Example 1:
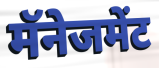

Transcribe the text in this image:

मॅनेजमेंट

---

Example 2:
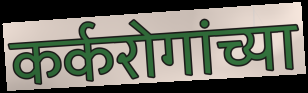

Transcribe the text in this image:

कर्करोगांच्या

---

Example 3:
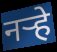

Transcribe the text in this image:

नऱ्हे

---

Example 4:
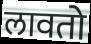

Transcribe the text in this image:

लावतो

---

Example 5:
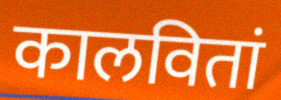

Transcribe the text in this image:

कालवितां